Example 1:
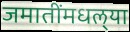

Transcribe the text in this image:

जमातींमधल्या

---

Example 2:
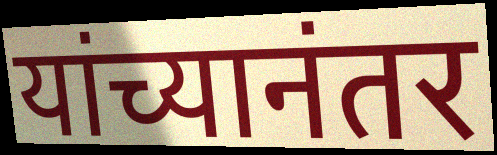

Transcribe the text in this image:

यांच्यानंतर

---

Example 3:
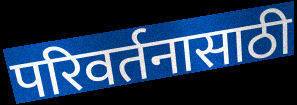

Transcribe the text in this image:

परिवर्तनासाठी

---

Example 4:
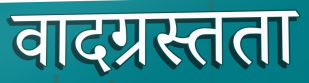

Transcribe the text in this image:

वादग्रस्तता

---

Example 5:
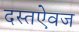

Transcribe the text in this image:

दस्तऐवज